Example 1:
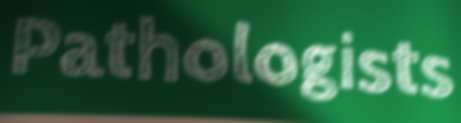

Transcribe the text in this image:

Pathologists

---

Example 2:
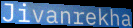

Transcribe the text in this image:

Jivanrekha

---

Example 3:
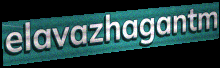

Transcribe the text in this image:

elavazhagantm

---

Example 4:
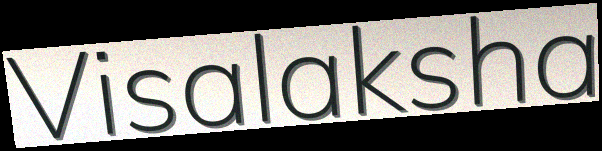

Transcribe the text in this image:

Visalaksha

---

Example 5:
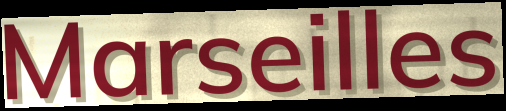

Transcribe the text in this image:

Marseilles